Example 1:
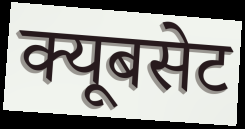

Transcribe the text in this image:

क्यूबसेट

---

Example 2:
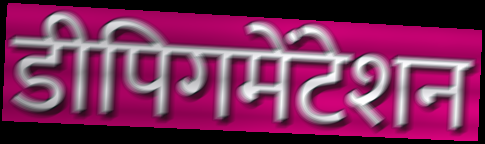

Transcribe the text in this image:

डीपिगमेंटेशन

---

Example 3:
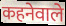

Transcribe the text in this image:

कहनेवाले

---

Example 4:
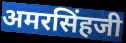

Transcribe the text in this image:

अमरसिंहजी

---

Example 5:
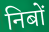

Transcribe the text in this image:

निबों